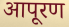
आपूरण